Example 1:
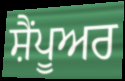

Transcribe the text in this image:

ਸ਼ੈਂਪੂਅਰ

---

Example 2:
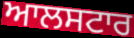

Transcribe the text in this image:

ਆਲਸਟਾਰ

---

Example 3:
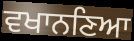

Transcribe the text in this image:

ਵਖਾਨਣਿਆ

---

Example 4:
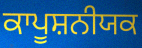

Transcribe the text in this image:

ਕਾਪੂਸ਼ਨੀਯਕ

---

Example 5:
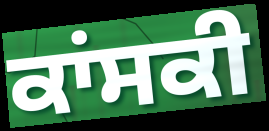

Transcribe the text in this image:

ਕਾਂਸਕੀ